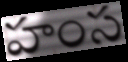
హంస